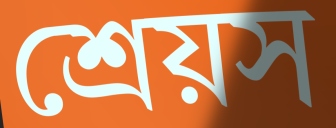
শ্রেয়স